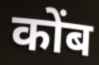
कोंब